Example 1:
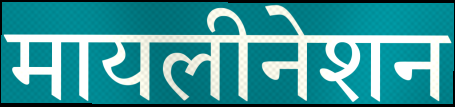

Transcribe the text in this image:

मायलीनेशन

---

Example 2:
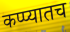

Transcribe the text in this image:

कप्प्यातच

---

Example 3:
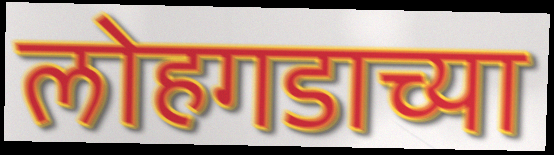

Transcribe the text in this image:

लोहगडाच्या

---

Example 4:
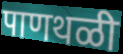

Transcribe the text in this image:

पाणथळी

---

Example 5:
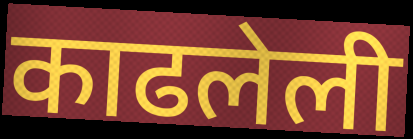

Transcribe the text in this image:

काढलेली